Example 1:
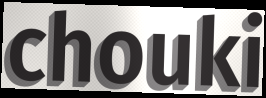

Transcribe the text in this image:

chouki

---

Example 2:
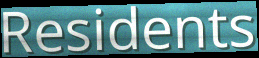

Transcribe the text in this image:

Residents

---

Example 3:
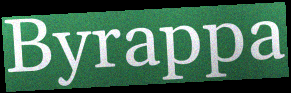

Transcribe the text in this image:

Byrappa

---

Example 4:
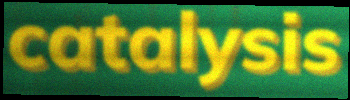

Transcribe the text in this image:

catalysis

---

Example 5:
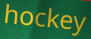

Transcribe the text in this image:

hockey